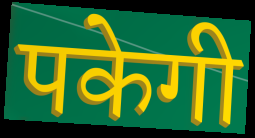
पकेगी